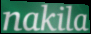
nakila